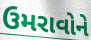
ઉમરાવોને